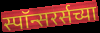
स्पॉन्सरर्सच्या